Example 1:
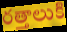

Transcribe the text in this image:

రత్తాలుకి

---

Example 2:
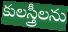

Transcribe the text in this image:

కులస్త్రీలను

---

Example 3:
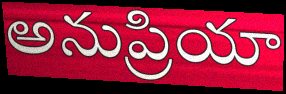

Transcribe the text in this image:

అనుప్రియా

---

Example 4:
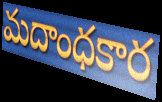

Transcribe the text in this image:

మదాంధకార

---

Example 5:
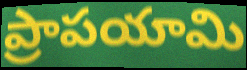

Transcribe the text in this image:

ప్రాపయామి